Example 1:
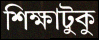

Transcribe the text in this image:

শিক্ষাটুকু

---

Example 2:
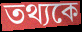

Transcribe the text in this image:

তথ্যকে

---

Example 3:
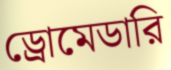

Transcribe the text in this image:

ড্রোমেডারি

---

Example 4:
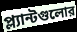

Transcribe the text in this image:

প্ল্যান্টগুলোর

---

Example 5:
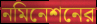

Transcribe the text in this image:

নমিনেশনের